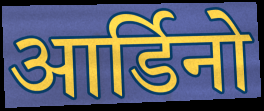
आर्डिनो